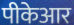
पीकेआर